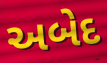
અબેદ